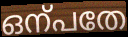
ഒന്പതേ